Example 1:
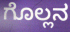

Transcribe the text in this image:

ಗೊಲ್ಲನ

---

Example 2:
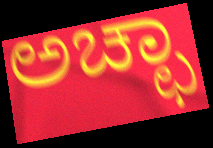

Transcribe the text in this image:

ಅಚ್ಛಾ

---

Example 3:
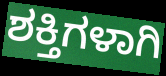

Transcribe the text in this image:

ಶಕ್ತಿಗಳಾಗಿ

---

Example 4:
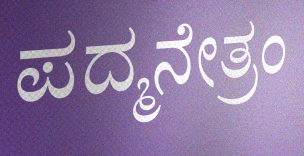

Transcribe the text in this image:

ಪದ್ಮನೇತ್ರಂ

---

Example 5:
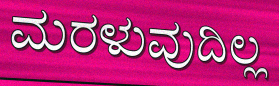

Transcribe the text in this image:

ಮರಳುವುದಿಲ್ಲ